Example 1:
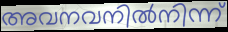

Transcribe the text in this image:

അവനവനിൽനിന്ന്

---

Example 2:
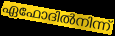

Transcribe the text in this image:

ഏഫോദിൽനിന്ന്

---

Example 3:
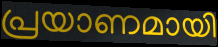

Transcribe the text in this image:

പ്രയാണമായി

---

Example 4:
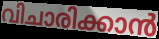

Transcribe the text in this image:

വിചാരിക്കാൻ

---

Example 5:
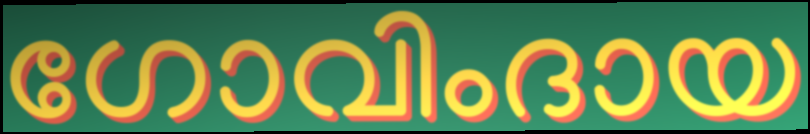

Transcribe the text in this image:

ഗോവിംദായ